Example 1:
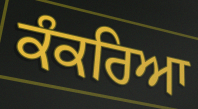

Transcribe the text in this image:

ਕੰਕਰਿਆ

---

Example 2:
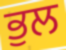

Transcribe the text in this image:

ਭੁਲ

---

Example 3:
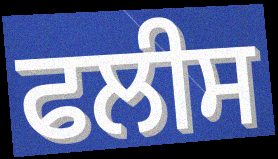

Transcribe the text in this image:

ਫਲੀਸ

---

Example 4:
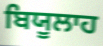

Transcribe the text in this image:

ਬਿਯੂਲਾਹ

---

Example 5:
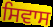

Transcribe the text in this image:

ਸਿਵਾਸ